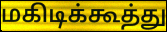
மகிடிக்கூத்து